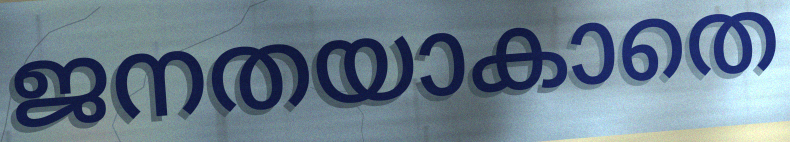
ജനതയാകാതെ